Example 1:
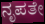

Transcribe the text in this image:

ನೃಪತೇ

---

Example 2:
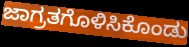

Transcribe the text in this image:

ಜಾಗ್ರತಗೊಳಿಸಿಕೊಂಡು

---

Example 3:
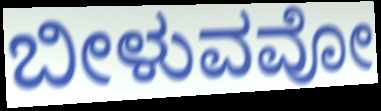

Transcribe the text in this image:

ಬೀಳುವವೋ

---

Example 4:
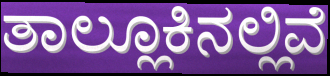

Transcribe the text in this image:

ತಾಲ್ಲೂಕಿನಲ್ಲಿವೆ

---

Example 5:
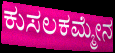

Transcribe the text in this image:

ಕುಸಲಕಮ್ಮೇನ